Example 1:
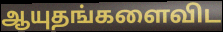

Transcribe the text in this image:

ஆயுதங்களைவிட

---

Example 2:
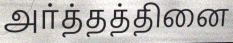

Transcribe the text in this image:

அர்த்தத்தினை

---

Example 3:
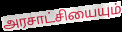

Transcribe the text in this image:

அரசாட்சியையும்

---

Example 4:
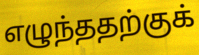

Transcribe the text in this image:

எழுந்ததற்குக்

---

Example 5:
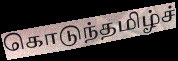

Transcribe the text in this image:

கொடுந்தமிழ்ச்